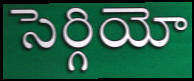
సెర్గియో